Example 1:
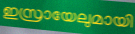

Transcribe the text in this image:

ഇസ്രായേലുമായി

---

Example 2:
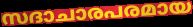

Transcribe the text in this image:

സദാചാരപരമായ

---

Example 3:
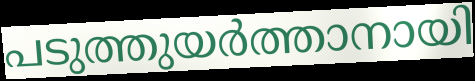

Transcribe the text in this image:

പടുത്തുയർത്താനായി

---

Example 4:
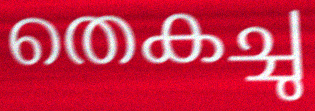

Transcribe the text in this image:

തെകച്ചു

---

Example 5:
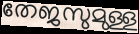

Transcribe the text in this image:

തേജസുമുള്ള